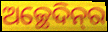
ଅଚ୍ଛେଦିନ୍‌ର